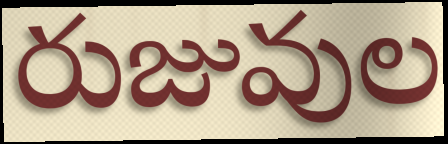
రుజువుల